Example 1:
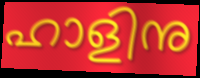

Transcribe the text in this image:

ഹാളിനു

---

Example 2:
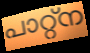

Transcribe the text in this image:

പാറ്റ്ന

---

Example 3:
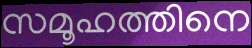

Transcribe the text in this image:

സമൂഹത്തിനെ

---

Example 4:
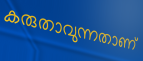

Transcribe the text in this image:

കരുതാവുന്നതാണ്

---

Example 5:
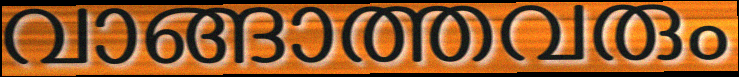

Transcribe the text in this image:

വാങ്ങാത്തവരും